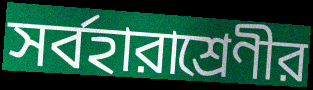
সর্বহারাশ্রেণীর